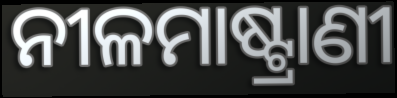
ନୀଳମାଷ୍ଟ୍ରାଣୀ